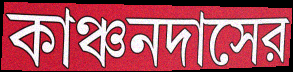
কাঞ্চনদাসের